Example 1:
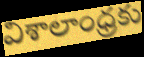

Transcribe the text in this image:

విశాలాంధ్రకు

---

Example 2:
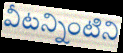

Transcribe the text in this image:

వీటన్నింటిని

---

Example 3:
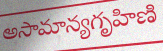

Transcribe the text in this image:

అసామాన్యగృహిణి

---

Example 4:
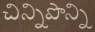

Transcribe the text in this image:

చిన్నిపొన్ని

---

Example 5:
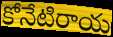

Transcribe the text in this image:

కోనేటిరాయ